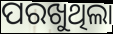
ପରଖୁଥିଲା